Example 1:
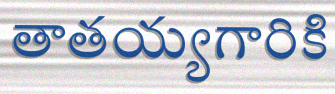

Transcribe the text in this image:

తాతయ్యగారికి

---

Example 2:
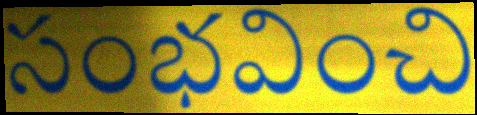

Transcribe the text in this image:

సంభవించి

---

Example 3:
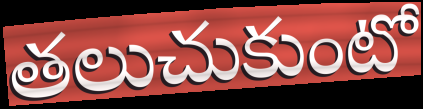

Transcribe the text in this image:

తలుచుకుంటో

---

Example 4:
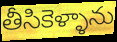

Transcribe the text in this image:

తీసికెళ్ళాను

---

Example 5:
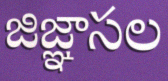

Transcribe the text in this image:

జిజ్ఞాసల